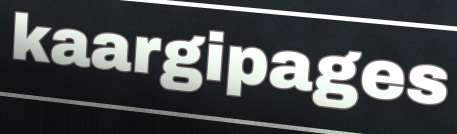
kaargipages